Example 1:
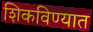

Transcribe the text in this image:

शिकविण्यात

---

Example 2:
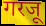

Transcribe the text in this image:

गरजू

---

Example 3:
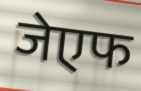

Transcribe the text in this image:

जेएफ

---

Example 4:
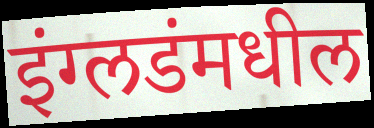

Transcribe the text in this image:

इंग्लडंमधील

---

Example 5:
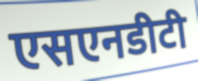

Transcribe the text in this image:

एसएनडीटी